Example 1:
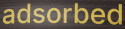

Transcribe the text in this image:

adsorbed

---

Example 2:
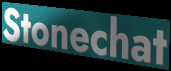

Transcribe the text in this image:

Stonechat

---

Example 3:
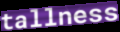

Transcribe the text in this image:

tallness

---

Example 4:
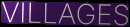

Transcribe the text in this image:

VILLAGES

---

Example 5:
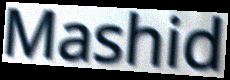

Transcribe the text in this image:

Mashid